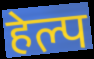
हेल्‍प